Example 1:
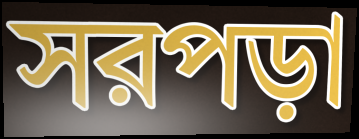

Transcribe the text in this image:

সরপড়া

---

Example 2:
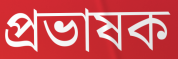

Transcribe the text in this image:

প্রভাষক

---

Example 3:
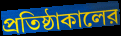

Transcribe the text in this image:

প্রতিষ্ঠাকালের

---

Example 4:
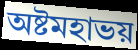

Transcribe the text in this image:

অষ্টমহাভয়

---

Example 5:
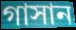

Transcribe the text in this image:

গাসান